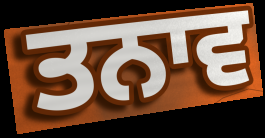
ਤਨਾਵ